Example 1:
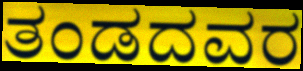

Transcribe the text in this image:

ತಂಡದವರ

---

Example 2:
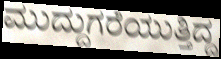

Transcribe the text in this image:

ಮುದ್ದುಗರೆಯುತ್ತಿದ್ದ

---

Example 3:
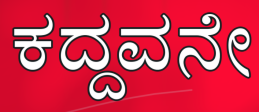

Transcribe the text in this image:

ಕದ್ದವನೇ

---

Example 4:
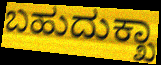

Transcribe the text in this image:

ಬಹುದುಕ್ಖಾ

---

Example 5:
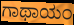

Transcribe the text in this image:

ಗಾಥಾಯಂ